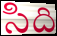
సిది